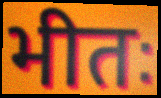
भीतः